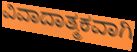
ವಿವಾದಾತ್ಮಕವಾಗಿ